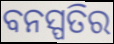
ବନସ୍ପତିର